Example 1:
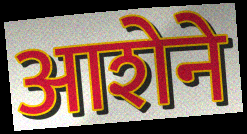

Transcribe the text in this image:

आशेने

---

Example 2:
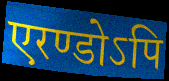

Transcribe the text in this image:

एरण्डोऽपि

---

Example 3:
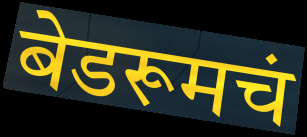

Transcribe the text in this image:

बेडरूमचं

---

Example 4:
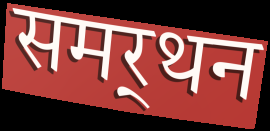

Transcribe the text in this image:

समर्थन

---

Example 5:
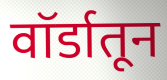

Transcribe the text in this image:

वॉर्डातून